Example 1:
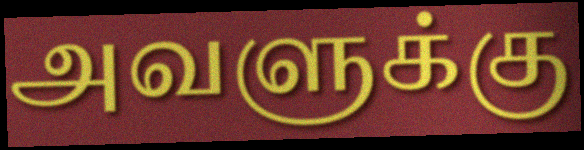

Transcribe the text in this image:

அவளுக்கு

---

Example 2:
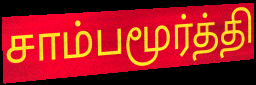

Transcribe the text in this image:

சாம்பமூர்த்தி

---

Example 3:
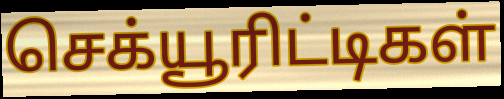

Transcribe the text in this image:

செக்யூரிட்டிகள்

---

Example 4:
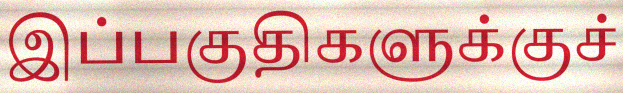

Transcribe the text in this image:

இப்பகுதிகளுக்குச்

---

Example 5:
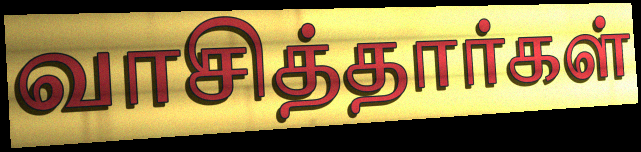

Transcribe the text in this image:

வாசித்தார்கள்